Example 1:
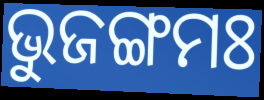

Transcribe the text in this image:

ଭୁଜଙ୍ଗମଃ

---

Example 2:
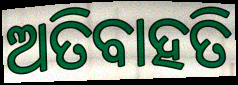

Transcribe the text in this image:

ଅତିବାହତି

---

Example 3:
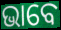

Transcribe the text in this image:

ଭାବେ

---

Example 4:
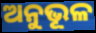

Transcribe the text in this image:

ଅନୁଭୂଳ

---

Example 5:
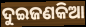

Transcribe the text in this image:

ଦୁଇଜଣକିଆ